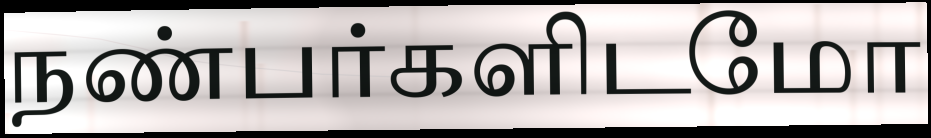
நண்பர்களிடமோ